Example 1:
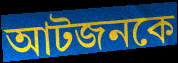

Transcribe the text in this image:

আটজনকে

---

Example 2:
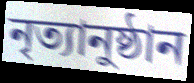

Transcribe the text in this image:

নৃত্যানুষ্ঠান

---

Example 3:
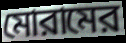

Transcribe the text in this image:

মোরামের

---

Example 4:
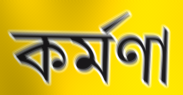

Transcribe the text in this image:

কর্মণা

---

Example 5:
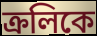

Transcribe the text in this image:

ক্রলিকে